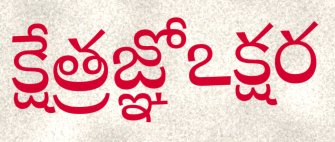
క్షేత్రజ్ఞోఽక్షర